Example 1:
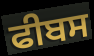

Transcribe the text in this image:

ਫੀਬਸ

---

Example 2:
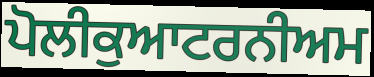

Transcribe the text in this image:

ਪੋਲੀਕੁਆਟਰਨੀਅਮ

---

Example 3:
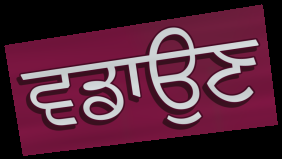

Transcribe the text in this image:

ਵਡਾਉਣ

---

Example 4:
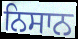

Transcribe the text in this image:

ਨਿਸਾਨ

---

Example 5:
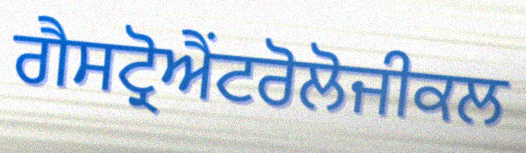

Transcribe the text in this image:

ਗੈਸਟ੍ਰੋਐਂਟਰੋਲੋਜੀਕਲ